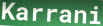
Karrani